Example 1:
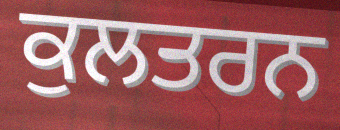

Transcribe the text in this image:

ਕੁਲਤਰਨ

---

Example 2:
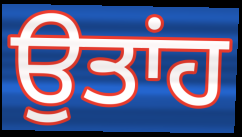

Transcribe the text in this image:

ਉਤਾਂਹ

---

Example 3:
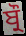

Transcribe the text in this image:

ਬ੍ਰੌ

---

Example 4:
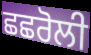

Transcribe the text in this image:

ਛਛਰੋਲੀ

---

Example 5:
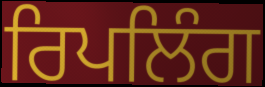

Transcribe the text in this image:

ਰਿਪਲਿੰਗ